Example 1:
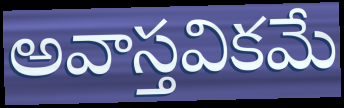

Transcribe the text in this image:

అవాస్తవికమే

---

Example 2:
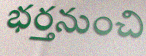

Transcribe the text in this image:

భర్తనుంచి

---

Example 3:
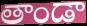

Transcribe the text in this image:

తాండా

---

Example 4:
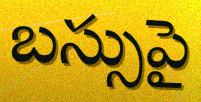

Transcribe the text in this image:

బస్సుపై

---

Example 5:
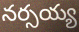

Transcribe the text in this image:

నర్సయ్య